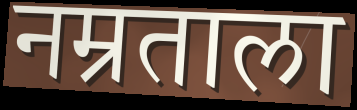
नम्रताला